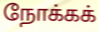
நோக்கக்